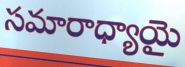
సమారాధ్యాయై